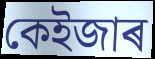
কেইজাৰ